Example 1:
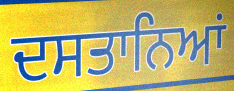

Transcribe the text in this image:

ਦਸਤਾਨਿਆਂ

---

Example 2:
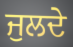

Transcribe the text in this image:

ਜੁਲਦੇ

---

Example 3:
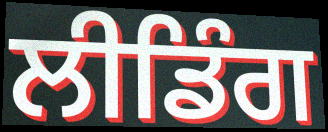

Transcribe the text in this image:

ਲੀਡਿੰਗ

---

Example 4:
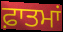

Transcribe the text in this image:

ਫ਼ਾਤਮਾਂ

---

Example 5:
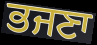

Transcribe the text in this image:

ਭਜਣਾ